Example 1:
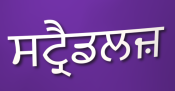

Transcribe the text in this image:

ਸਟ੍ਰੈਡਲਜ਼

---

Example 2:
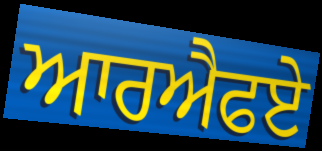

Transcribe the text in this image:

ਆਰਐਫਏ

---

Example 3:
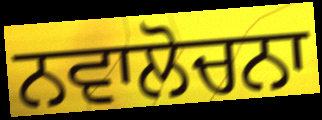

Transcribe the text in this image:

ਨਵਾਲੋਚਨਾ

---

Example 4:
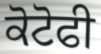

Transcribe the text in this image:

ਕੋਟੋਫੀ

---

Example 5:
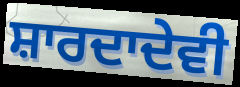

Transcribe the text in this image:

ਸ਼ਾਰਦਾਦੇਵੀ